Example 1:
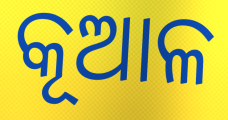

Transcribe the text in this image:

କୂଆଳ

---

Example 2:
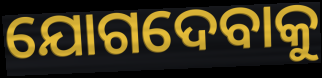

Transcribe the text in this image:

ଯୋଗଦେବାକୁ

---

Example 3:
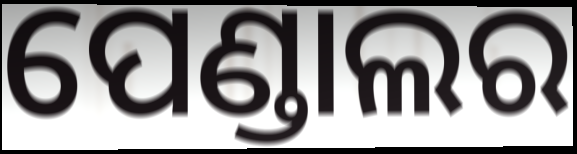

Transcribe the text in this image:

ପେଣ୍ଡାଲର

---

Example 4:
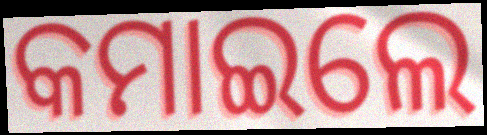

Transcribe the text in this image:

କମାଇଲେ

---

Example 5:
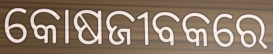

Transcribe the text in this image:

କୋଷଜୀବକରେ